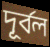
দূর্বল